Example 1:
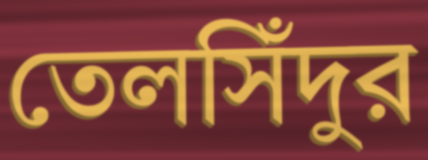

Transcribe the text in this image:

তেলসিঁদুর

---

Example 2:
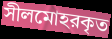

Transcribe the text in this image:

সীলমোহরকৃত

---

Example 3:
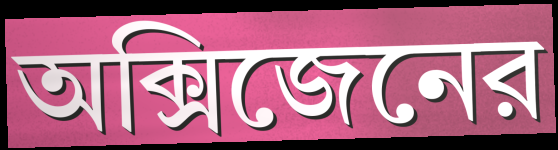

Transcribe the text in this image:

অক্সিজেনের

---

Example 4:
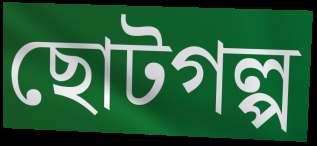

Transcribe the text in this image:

ছোটগল্প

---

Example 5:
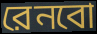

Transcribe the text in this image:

রেনবো